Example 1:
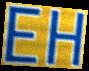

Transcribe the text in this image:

EH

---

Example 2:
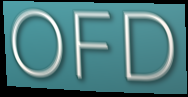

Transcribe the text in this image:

OFD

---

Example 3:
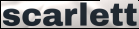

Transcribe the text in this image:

scarlett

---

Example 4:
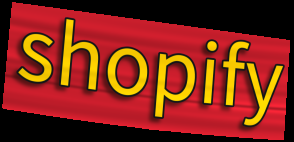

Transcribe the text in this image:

shopify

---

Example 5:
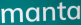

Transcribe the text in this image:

manta